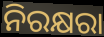
ନିରକ୍ଷରା